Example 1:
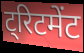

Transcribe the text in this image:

ट्रिटमेंट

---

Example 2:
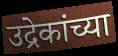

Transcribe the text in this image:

उद्रेकांच्या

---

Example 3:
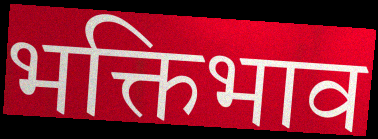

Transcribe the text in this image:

भक्तिभाव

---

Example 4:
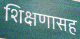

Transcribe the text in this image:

शिक्षणासह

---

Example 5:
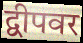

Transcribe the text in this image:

द्वीपवर